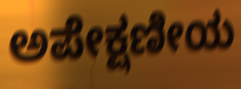
ಅಪೇಕ್ಷಣೀಯ